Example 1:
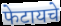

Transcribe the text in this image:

फेटायचे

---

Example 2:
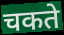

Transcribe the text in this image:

चकते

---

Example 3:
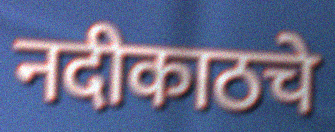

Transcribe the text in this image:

नदीकाठचे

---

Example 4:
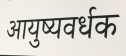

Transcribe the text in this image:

आयुष्यवर्धक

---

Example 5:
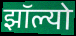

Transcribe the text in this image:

झॉल्यो